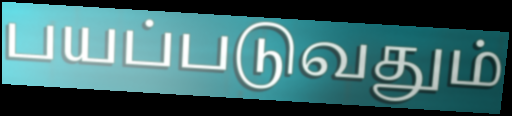
பயப்படுவதும்